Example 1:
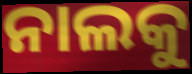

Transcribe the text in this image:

ନାଲକୁ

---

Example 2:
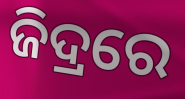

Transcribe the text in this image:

ଜିଦ୍ରରେ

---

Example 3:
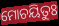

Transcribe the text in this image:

ମୋଚୟିତୁଃ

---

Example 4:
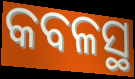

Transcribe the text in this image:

କବଳସ୍ଥ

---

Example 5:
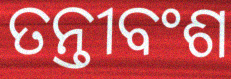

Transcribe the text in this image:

ତନ୍ତୀବଂଶ